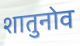
शातुनोव